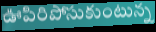
ఊపిరిపోసుకుంటున్న